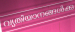
വ്യതിയാനങ്ങൾക്കു